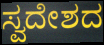
ಸ್ವದೇಶದ